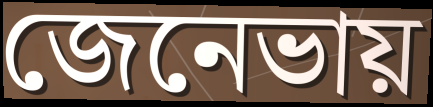
জেনেভায়